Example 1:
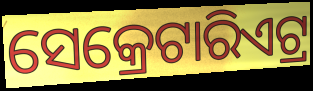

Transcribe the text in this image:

ସେକ୍ରେଟାରିଏଟ୍ର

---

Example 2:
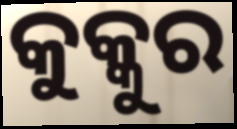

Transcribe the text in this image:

କୁକ୍କୁର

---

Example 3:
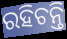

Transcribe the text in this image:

ରହିଚନ୍ତି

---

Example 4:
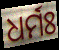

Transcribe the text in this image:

ଧର୍ମଃ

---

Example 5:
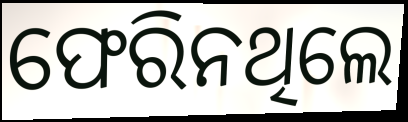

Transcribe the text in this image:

ଫେରିନଥିଲେ